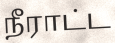
நீராட்ட